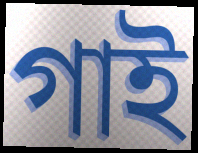
গাই